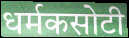
धर्मकसोटी